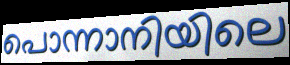
പൊന്നാനിയിലെ